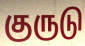
குருடு